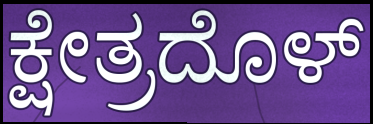
ಕ್ಷೇತ್ರದೊಳ್